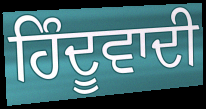
ਹਿੰਦੂਵਾਦੀ